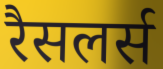
रैसलर्स